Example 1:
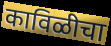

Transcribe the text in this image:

काविळीचा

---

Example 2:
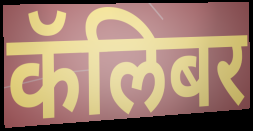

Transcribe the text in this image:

कॅलिबर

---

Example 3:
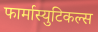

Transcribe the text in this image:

फार्मास्युटिकल्स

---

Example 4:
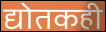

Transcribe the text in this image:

द्योतकही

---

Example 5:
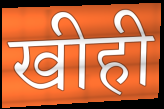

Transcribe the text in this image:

खीही